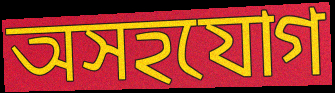
অসহযোগ